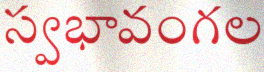
స్వభావంగల